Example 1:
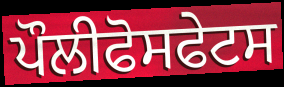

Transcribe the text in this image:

ਪੌਲੀਫੋਸਫੇਟਸ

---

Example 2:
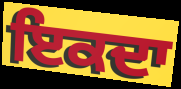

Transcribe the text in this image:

ਇਕਦਾ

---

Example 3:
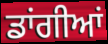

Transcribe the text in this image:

ਡਾਂਗੀਆਂ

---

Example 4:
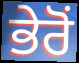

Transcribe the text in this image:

ਭੇਰੋਂ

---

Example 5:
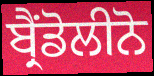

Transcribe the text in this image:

ਬ੍ਰੈਂਡੋਲੀਨੋ